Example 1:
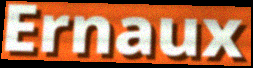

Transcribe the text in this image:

Ernaux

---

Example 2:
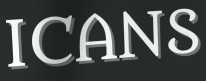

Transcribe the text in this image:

ICANS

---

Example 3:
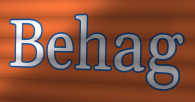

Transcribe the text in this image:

Behag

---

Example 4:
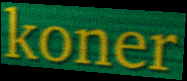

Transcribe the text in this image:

koner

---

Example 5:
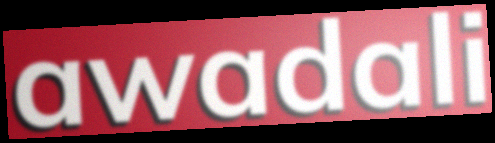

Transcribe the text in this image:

awadali